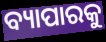
ବ୍ୟାପାରକୁ